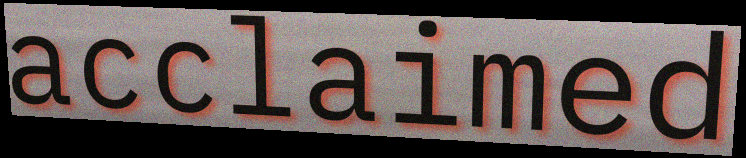
acclaimed